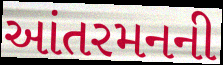
આંતરમનની